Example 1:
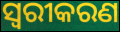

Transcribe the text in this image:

ସ୍ୱରୀକରଣ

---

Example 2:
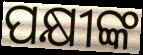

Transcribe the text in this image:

ପକ୍ଷୀଙ୍କ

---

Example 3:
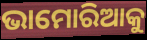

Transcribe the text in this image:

ଭାମୋରିଆକୁ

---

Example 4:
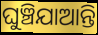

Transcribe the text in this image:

ଘୁଞ୍ଚିଯାଆନ୍ତି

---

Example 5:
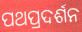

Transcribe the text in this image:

ପଥପ୍ରଦର୍ଶନ